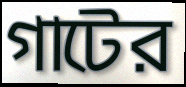
গাটের